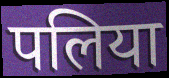
पलिया